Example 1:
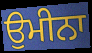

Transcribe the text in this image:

ਉਮੀਨਾ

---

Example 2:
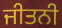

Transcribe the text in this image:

ਜੀਤਨੀ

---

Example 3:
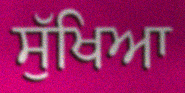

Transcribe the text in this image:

ਸੁੱਖਿਆ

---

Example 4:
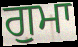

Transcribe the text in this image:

ਗੁਮਾ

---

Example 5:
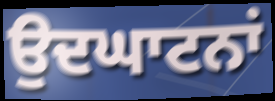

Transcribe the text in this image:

ਉਦਘਾਟਨਾਂ